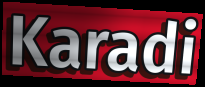
Karadi